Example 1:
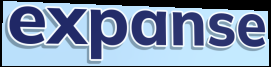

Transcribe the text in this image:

expanse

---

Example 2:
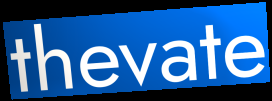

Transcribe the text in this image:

thevate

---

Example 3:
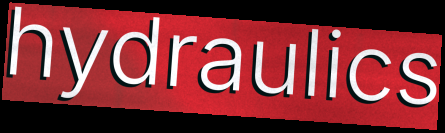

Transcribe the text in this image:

hydraulics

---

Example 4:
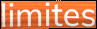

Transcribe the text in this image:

limites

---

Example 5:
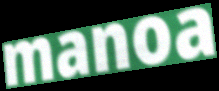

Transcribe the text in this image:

manoa